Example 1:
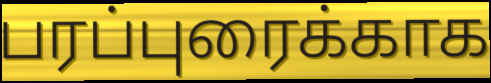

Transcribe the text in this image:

பரப்புரைக்காக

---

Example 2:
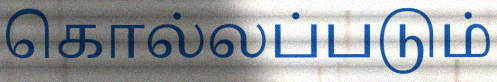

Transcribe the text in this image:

கொல்லப்படும்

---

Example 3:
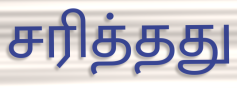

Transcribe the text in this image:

சரித்தது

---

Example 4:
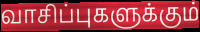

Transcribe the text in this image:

வாசிப்புகளுக்கும்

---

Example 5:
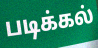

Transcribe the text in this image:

படிக்கல்